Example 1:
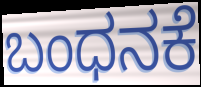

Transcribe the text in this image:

ಬಂಧನಕೆ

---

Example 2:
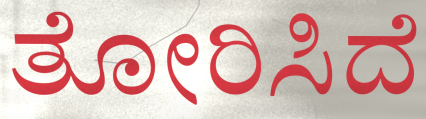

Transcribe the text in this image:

ತೋರಿಸಿದೆ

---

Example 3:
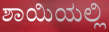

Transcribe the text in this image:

ಶಾಯಿಯಲ್ಲಿ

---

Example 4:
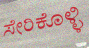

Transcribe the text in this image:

ಸೇರಿಕೊಳ್ಳಿ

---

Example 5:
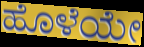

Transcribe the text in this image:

ಹೊಳೆಯೇ